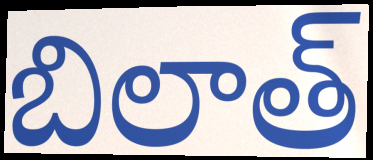
బిలాత్